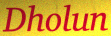
Dholun